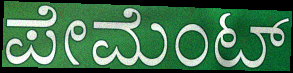
ಪೇಮೆಂಟ್